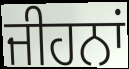
ਜੀਹਨਾਂ